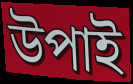
উপাই